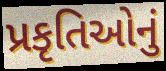
પ્રકૃતિઓનું